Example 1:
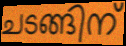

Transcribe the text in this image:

ചടങ്ങിന്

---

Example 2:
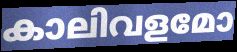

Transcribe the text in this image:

കാലിവളമോ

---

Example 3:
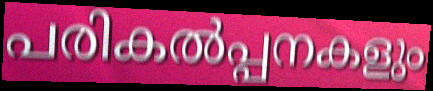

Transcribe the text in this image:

പരികൽപ്പനകളും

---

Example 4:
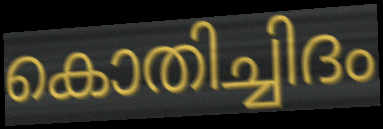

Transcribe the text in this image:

കൊതിച്ചിദം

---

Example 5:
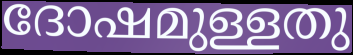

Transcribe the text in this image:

ദോഷമുള്ളതു